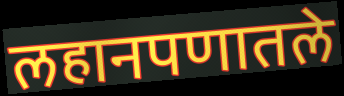
लहानपणातले